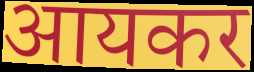
आयकर